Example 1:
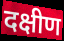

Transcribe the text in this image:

दक्षीण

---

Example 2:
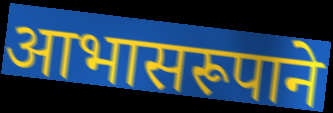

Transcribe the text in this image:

आभासरूपाने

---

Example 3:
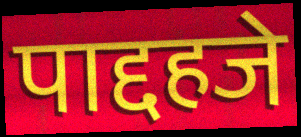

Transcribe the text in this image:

पाद्दहजे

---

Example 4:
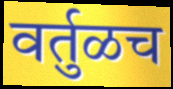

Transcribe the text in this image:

वर्तुळच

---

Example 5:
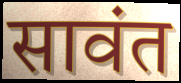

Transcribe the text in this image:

सावंत